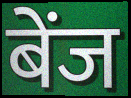
बेंज